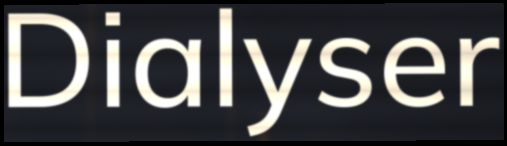
Dialyser